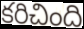
కరిచింది